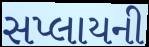
સપ્લાયની